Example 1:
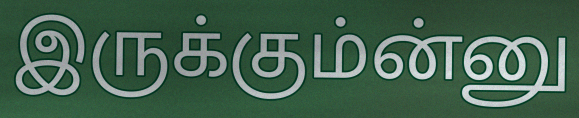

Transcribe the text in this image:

இருக்கும்ன்னு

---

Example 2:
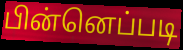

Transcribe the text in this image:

பின்னெப்படி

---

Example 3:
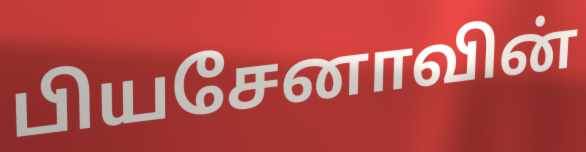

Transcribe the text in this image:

பியசேனாவின்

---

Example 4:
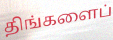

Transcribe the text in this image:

திங்களைப்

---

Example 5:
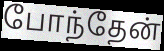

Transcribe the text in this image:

போந்தேன்